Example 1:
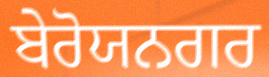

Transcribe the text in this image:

ਬੇਰੋਯਨਗਰ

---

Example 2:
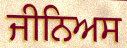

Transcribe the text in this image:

ਜੀਨਿਅਸ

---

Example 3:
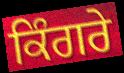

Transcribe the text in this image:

ਕਿੰਗਰੇ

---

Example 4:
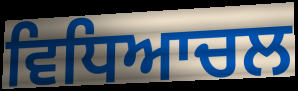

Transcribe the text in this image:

ਵਿਧਿਆਚਲ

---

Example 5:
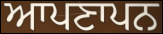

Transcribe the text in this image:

ਆਪਣਾਪਨ